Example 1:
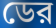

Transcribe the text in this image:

ডের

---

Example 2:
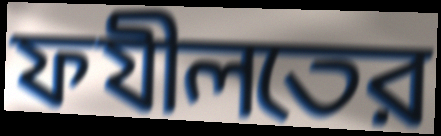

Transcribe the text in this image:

ফযীলতের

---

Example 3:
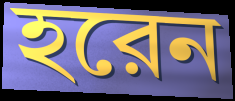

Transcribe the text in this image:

হরেন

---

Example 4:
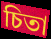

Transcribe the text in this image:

চিতা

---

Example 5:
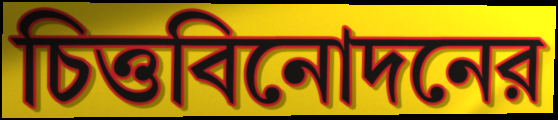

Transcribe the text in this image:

চিত্তবিনোদনের